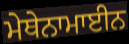
ਮੇਥੇਨਾਮਾਈਨ